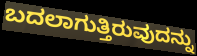
ಬದಲಾಗುತ್ತಿರುವುದನ್ನು